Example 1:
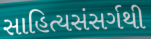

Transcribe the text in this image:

સાહિત્યસંસર્ગથી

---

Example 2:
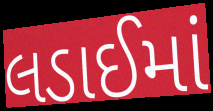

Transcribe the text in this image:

લડાઈમાં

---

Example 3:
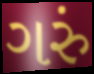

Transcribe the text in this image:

ગરું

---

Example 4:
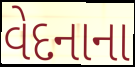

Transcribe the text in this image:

વેદનાના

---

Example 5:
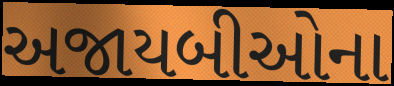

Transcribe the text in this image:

અજાયબીઓના